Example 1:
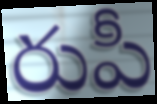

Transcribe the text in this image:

రుపీ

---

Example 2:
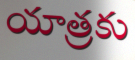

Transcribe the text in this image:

యాత్రకు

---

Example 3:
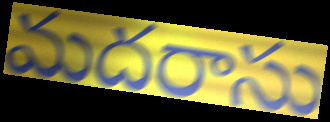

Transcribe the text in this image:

మదరాసు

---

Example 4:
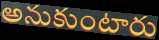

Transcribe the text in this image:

అనుకుంటారు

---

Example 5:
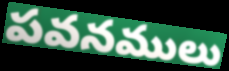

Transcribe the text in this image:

పవనములు